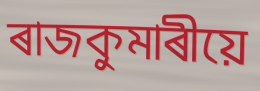
ৰাজকুমাৰীয়ে